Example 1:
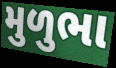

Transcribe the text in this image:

મુળુભા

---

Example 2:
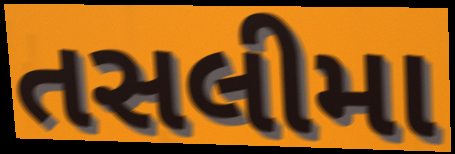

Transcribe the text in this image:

તસલીમા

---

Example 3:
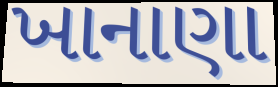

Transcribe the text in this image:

ખાનાણા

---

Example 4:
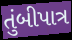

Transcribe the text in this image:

તુંબીપાત્ર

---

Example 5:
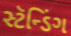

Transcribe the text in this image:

સ્ટૅન્ડિંગ